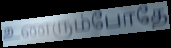
உணரும்போதே